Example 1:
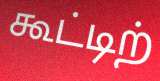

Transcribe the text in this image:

கூட்டிற்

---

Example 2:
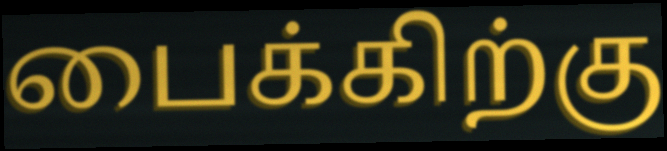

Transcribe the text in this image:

பைக்கிற்கு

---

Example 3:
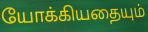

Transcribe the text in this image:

யோக்கியதையும்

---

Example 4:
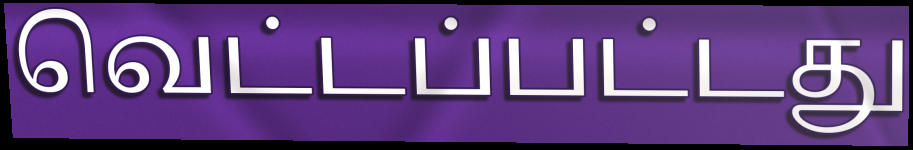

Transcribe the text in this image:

வெட்டப்பட்டது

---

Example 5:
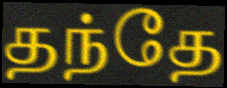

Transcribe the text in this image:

தந்தே